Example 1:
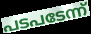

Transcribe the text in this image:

പടപടേന്ന്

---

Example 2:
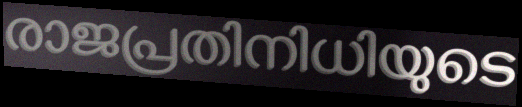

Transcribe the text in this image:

രാജപ്രതിനിധിയുടെ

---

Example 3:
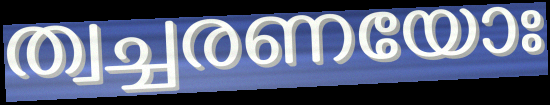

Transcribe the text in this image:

ത്വച്ചരണയോഃ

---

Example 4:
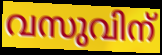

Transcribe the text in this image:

വസുവിന്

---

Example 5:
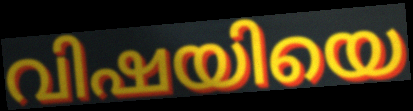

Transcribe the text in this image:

വിഷയിയെ